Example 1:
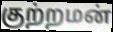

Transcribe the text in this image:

குற்றமன்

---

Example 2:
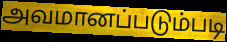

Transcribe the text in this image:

அவமானப்படும்படி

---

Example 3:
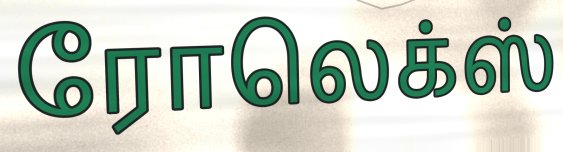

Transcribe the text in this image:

ரோலெக்ஸ்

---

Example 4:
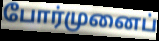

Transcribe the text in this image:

போர்முனைப்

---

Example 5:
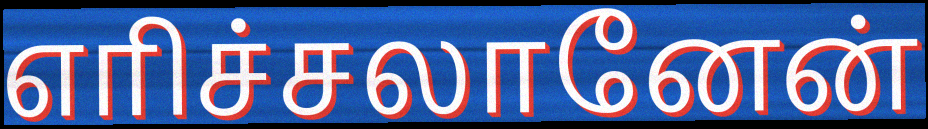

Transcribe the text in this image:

எரிச்சலானேன்